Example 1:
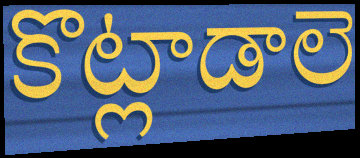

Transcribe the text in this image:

కొట్లాడాలె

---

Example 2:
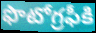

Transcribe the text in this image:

ఫొటోగ్రఫీకి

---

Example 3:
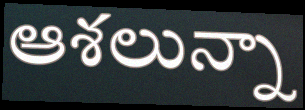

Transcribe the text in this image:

ఆశలున్నా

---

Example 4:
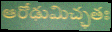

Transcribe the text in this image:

ఆరోఢుమిచ్ఛతః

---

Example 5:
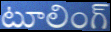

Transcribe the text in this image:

టూలింగ్